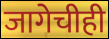
जागेचीही